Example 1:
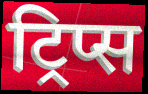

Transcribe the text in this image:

ट्रिप्स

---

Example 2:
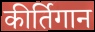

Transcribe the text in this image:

कीर्तिगान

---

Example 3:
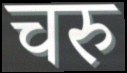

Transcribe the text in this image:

चरु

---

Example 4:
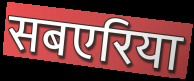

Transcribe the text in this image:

सबएरिया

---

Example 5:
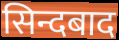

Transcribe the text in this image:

सिन्दबाद